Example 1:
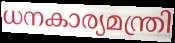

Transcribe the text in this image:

ധനകാര്യമന്ത്രി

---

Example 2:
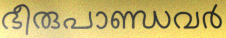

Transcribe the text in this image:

ഭീരുപാണ്ഡവർ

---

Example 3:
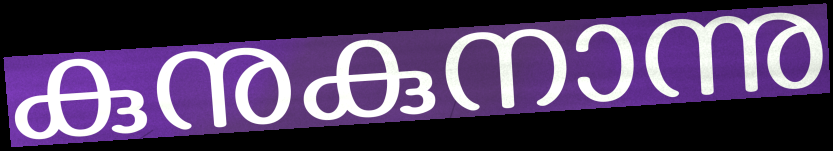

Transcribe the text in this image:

കുനുകുനാന്നു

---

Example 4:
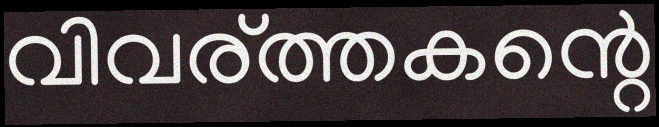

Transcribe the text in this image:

വിവര്ത്തകന്റെ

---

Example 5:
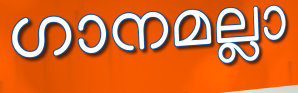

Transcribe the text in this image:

ഗാനമല്ലാ